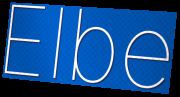
Elbe